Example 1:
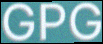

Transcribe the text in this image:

GPG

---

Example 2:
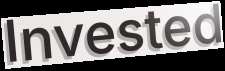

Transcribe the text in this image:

Invested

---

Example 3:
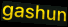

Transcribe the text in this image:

gashun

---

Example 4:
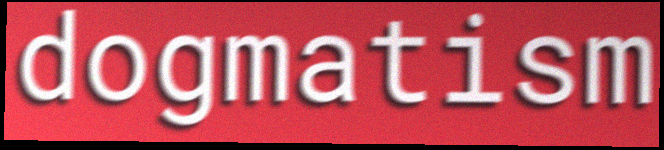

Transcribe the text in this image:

dogmatism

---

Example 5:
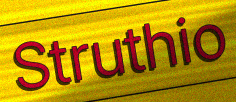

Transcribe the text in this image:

Struthio